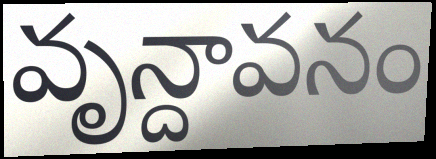
వృన్దావనం